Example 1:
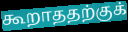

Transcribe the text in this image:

கூறாததற்குக்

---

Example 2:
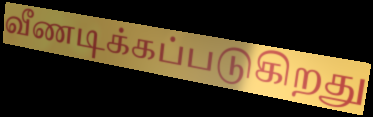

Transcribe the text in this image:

வீணடிக்கப்படுகிறது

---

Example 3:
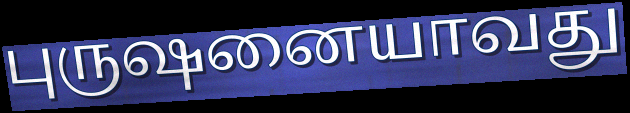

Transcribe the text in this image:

புருஷனையாவது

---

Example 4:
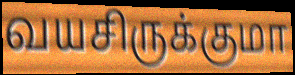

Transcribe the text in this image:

வயசிருக்குமா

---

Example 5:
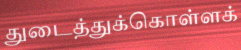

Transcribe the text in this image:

துடைத்துக்கொள்ளக்